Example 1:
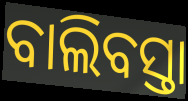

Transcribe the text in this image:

ବାଲିବସ୍ତା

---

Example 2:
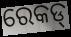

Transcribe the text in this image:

ରେକଡ୍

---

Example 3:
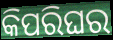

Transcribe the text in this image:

କିପରିଘର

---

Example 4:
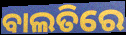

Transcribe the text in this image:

ବାଲତିରେ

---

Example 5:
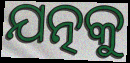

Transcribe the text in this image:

ଯତ୍ନକୁ